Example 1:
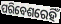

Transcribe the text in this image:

ପରିବେଶରେହିଁ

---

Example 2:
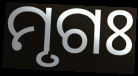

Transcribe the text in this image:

ମୃଗଃ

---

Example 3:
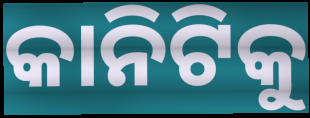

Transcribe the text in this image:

କାନିଟିକୁ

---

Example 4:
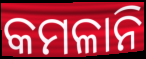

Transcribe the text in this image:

କମଳାନି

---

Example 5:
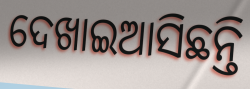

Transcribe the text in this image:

ଦେଖାଇଆସିଛନ୍ତି